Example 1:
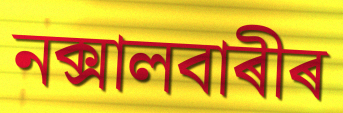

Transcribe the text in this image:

নক্সালবাৰীৰ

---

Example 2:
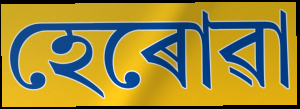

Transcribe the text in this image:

হেৰোৱা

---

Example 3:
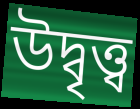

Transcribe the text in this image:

উদ্বৃত্ত্ব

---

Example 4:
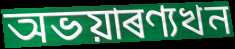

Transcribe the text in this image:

অভয়াৰণ্যখন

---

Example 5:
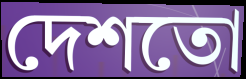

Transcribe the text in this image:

দেশতো